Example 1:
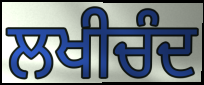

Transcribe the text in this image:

ਲਖੀਚੰਦ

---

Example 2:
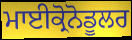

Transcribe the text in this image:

ਮਾਈਕ੍ਰੋਨੋਡੂਲਰ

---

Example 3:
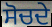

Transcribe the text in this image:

ਸੋਚਦੇ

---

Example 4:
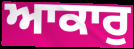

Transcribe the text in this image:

ਆਕਾਰੁ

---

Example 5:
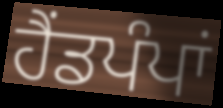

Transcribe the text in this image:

ਹੈਂਡਪੰਪਾਂ